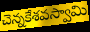
చెన్నకేశవస్వామి